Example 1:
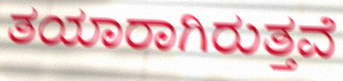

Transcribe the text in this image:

ತಯಾರಾಗಿರುತ್ತವೆ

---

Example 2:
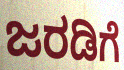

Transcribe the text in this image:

ಜರಡಿಗೆ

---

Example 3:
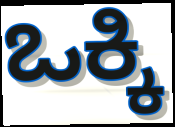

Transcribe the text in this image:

ಒಕ್ಕಿ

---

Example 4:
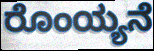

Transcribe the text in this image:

ರೊಂಯ್ಯನೆ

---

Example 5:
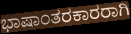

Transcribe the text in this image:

ಭಾಷಾಂತರಕಾರರಾಗಿ